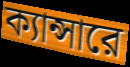
ক্যান্সারে